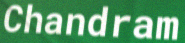
Chandram